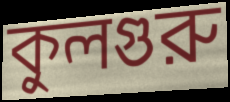
কুলগুরু